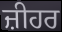
ਜ਼ੀਹਰ